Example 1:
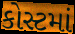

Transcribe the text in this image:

કોસ્ટમાં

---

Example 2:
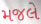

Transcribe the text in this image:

મજલે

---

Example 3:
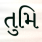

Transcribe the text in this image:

તુમિ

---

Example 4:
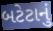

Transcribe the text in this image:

બટેટાનું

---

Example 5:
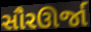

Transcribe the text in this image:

સૌરઊર્જા